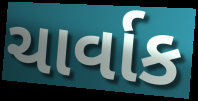
ચાર્વાક